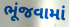
ભૂંજવામાં